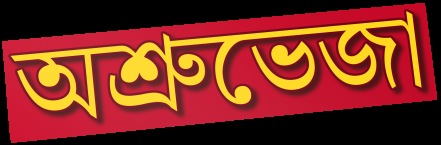
অশ্রুভেজা